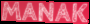
MANAK